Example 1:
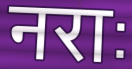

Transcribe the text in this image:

नराः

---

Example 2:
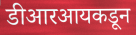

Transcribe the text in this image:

डीआरआयकडून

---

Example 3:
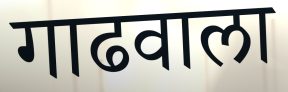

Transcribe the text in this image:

गाढवाला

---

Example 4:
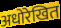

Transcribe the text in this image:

अधोरेखित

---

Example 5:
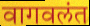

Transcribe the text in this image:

वागवलंत